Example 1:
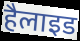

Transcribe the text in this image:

हैलाइड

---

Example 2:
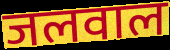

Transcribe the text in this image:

जलवाल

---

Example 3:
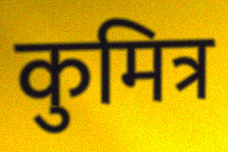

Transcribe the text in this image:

कुमित्र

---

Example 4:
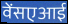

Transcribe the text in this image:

वेंसएआई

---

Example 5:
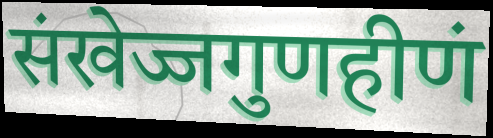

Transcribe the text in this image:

संखेज्जगुणहीणं